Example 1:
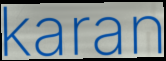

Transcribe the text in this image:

karan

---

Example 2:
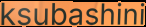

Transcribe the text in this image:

ksubashini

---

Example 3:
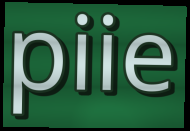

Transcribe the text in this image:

piie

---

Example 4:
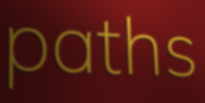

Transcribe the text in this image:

paths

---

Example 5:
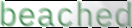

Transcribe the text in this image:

beached